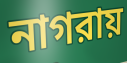
নাগরায়